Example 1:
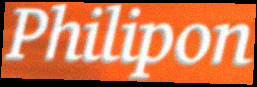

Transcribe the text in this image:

Philipon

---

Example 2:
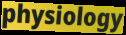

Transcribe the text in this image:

physiology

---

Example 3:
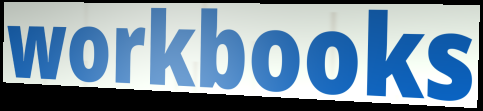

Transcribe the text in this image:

workbooks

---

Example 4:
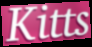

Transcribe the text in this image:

Kitts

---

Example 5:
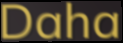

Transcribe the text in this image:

Daha